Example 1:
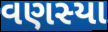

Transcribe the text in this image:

વણસ્યા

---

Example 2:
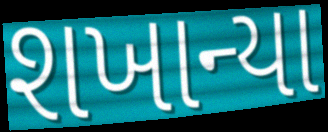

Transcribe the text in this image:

શખાન્યા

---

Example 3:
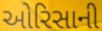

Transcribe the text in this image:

ઓરિસાની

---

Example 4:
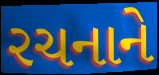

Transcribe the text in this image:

રચનાને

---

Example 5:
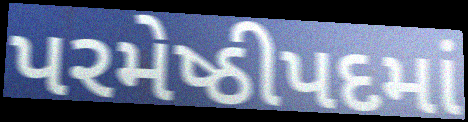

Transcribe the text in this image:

પરમેષ્ઠીપદમાં